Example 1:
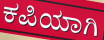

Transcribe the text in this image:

ಕಪಿಯಾಗಿ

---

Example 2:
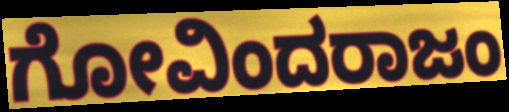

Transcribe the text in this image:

ಗೋವಿಂದರಾಜಂ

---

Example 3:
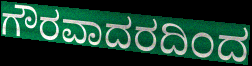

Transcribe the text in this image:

ಗೌರವಾದರದಿಂದ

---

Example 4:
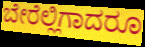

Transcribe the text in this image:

ಬೇರೆಲ್ಲಿಗಾದರೂ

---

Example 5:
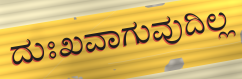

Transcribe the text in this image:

ದುಃಖವಾಗುವುದಿಲ್ಲ